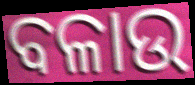
ବଳାଉ